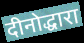
दीनोद्धारा